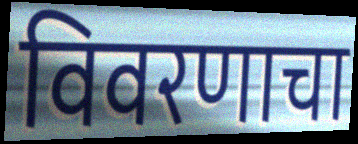
विवरणाचा